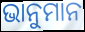
ଭାନୁମାନ